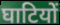
घाटियों